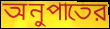
অনুপাতের